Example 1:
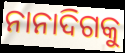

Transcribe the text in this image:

ନାନାଦିଗକୁ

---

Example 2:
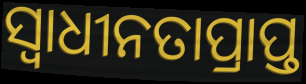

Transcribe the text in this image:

ସ୍ବାଧୀନତାପ୍ରାପ୍ତ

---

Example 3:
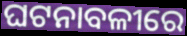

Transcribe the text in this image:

ଘଟନାବଳୀରେ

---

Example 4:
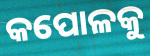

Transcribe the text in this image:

କପୋଳକୁ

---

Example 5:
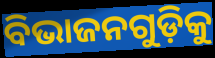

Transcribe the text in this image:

ବିଭାଜନଗୁଡ଼ିକୁ